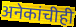
अनेकांचीही